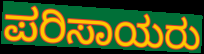
ಪರಿಸಾಯರು